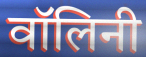
वॉलिनी